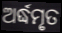
ଅର୍ଦ୍ଧମୃତ